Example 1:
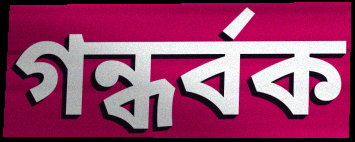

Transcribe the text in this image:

গন্ধৰ্বক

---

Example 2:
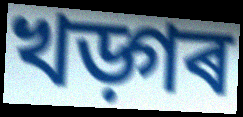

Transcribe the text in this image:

খড়্গৰ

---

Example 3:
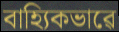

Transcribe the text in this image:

বাহ্যিকভাৱে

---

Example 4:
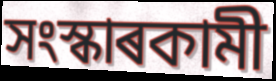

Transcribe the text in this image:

সংস্কাৰকামী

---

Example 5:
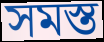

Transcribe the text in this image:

সমস্ত